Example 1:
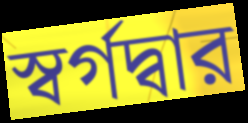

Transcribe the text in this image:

স্বর্গদ্বার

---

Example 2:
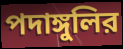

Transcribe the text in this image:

পদাঙ্গুলির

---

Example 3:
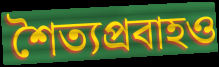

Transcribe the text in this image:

শৈত্যপ্রবাহও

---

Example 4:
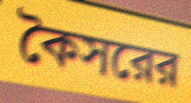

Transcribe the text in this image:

কৈসরের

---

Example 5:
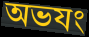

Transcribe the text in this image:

অভযং